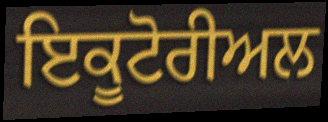
ਇਕੂਟੋਰੀਅਲ